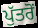
ਪੁੱਤਰੋਂ